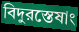
বিদুরস্তেষাং